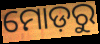
ମୋଡ଼ରୁ